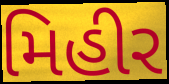
મિહીર